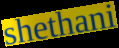
shethani